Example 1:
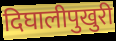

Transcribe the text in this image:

दिघालीपुखुरी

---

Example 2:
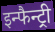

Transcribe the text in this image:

इन्फैन्ट्री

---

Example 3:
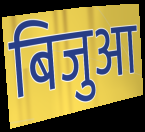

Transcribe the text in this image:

बिजुआ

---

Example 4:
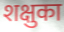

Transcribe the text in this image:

शक्षुका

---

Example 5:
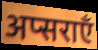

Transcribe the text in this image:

अप्सराएँ